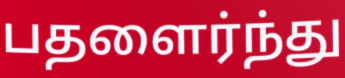
பதளைர்ந்து